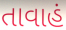
તાવાહં